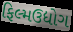
ફિલ્મઉદ્યોગ